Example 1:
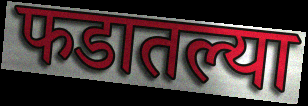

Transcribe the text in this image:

फडातल्या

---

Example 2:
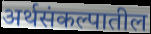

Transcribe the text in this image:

अर्थसंकल्पातील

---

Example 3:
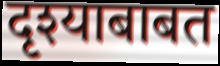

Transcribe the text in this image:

दृश्याबाबत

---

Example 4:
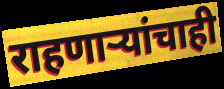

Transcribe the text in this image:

राहणाऱ्यांचाही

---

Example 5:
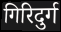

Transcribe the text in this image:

गिरिदुर्ग